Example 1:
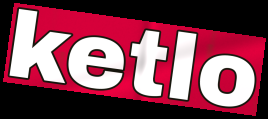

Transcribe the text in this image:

ketlo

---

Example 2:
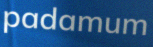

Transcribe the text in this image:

padamum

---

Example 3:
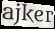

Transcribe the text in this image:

ajker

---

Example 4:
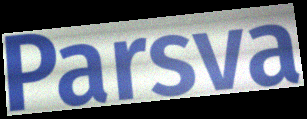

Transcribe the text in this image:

Parsva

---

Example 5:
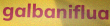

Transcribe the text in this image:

galbaniflua